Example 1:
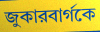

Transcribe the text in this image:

জুকারবার্গকে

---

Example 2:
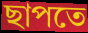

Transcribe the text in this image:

ছাপতে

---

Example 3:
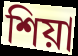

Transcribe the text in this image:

শিয়া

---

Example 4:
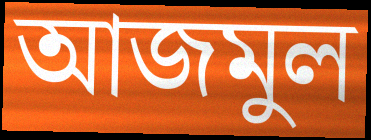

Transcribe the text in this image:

আজমুল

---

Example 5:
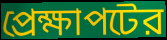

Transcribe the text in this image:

প্রেক্ষাপটের